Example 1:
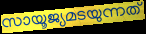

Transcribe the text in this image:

സായൂജ്യമടയുന്നത്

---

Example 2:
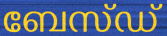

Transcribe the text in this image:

ബേസ്ഡ്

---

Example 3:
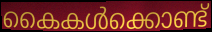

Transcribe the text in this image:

കൈകൾക്കൊണ്ട്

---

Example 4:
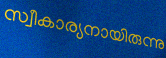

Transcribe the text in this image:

സ്വീകാര്യനായിരുന്നു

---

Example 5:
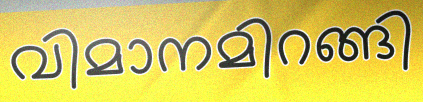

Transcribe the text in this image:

വിമാനമിറങ്ങി